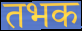
तभक